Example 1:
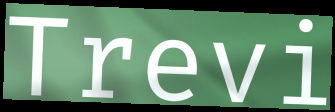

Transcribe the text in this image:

Trevi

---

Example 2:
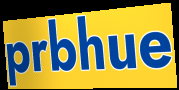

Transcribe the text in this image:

prbhue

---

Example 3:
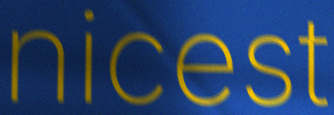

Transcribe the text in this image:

nicest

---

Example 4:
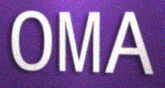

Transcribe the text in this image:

OMA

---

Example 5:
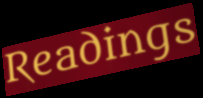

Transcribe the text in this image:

Readings